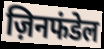
ज़िनफंडेल